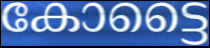
കോട്ടൈ